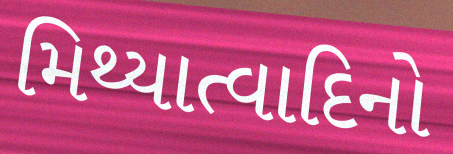
મિથ્યાત્વાદિનો